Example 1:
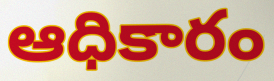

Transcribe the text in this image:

ఆధికారం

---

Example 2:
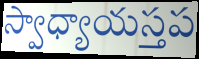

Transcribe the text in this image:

స్వాధ్యాయస్తప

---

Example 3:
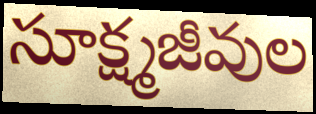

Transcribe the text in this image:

సూక్ష్మజీవుల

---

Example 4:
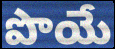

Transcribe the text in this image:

పొయే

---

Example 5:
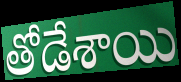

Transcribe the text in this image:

తోడేశాయి